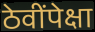
ठेवींपेक्षा